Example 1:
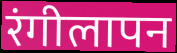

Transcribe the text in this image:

रंगीलापन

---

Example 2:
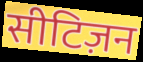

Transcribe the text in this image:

सीटिज़न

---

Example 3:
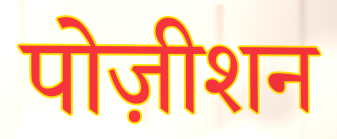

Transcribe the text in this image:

पोज़ीशन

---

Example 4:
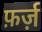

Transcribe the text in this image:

फ़र्ज़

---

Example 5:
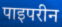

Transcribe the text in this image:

पाइपरीन